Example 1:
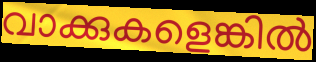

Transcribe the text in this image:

വാക്കുകളെങ്കിൽ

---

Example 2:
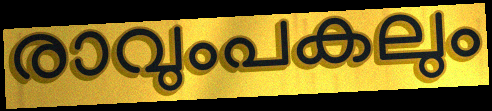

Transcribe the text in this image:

രാവുംപകലും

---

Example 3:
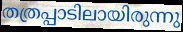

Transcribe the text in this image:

തത്രപ്പാടിലായിരുന്നു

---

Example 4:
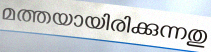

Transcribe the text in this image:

മത്തയായിരിക്കുന്നതു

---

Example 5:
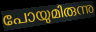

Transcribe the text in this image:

പോയുമിരുന്നു